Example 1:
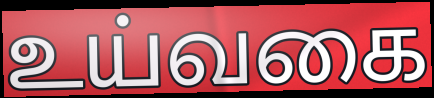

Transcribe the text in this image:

உய்வகை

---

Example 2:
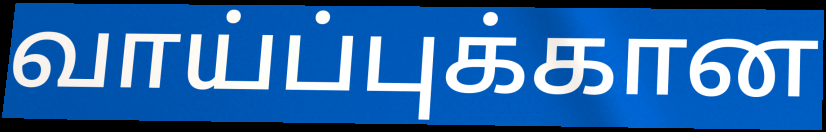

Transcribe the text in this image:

வாய்ப்புக்கான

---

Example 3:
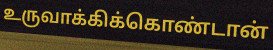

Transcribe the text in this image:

உருவாக்கிக்கொண்டான்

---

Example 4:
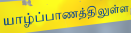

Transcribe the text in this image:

யாழ்ப்பாணத்திலுள்ள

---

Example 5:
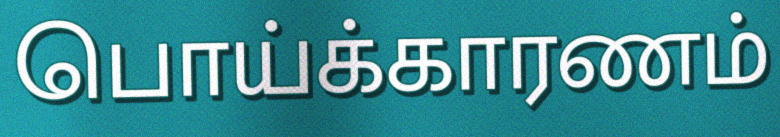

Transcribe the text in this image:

பொய்க்காரணம்